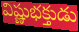
విష్ణుభక్తుడు